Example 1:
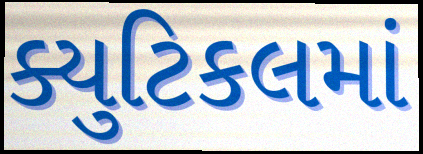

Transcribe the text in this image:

ક્યુટિકલમાં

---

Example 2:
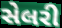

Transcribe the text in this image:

સેલરી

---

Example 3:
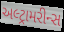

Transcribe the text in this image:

અલ્ટ્રામરીન્સ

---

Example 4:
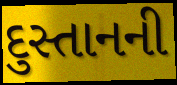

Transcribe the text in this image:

દુસ્તાનની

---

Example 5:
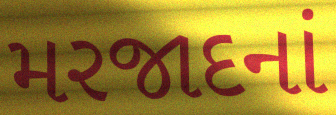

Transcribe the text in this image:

મરજાદનાં